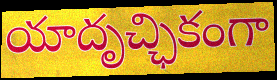
యాదృచ్ఛికంగా